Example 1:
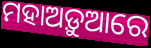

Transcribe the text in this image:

ମହାଅଡ଼ୁଆରେ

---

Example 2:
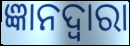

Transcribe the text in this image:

ଜ୍ଞାନଦ୍ଵାରା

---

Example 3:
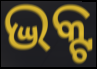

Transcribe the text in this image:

ଦ୍ଭକ୍ଟ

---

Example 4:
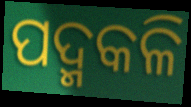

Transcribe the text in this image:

ପଦ୍ମକଳି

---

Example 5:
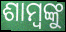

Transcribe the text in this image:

ଶାମ୍ବଙ୍କୁ